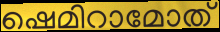
ഷെമിറാമോത്